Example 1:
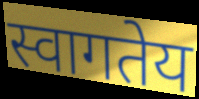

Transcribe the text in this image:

स्वागतेय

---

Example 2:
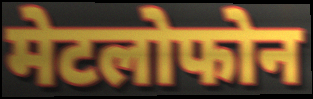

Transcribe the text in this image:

मेटलोफोन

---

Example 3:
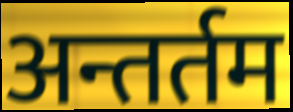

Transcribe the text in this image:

अन्तर्तम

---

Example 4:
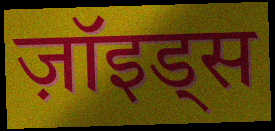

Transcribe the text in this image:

ज़ॉइड्स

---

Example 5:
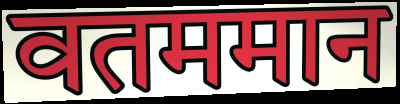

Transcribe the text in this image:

वतममान